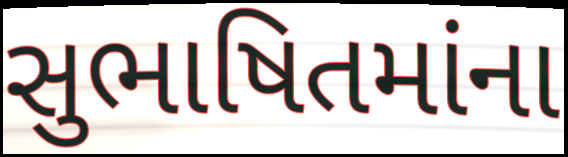
સુભાષિતમાંના